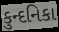
કુન્દનિકા